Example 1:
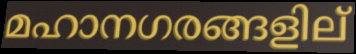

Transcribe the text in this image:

മഹാനഗരങ്ങളില്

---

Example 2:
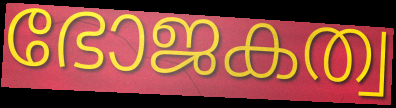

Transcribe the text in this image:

ഭോജകത്വ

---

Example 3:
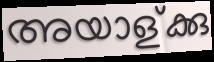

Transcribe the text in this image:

അയാള്ക്കു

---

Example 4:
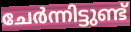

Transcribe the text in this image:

ചേർന്നിട്ടുണ്ട്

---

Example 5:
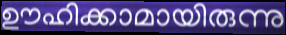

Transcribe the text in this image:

ഊഹിക്കാമായിരുന്നു